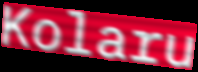
Kolaru